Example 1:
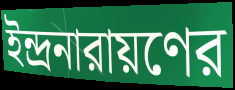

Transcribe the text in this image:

ইন্দ্রনারায়ণের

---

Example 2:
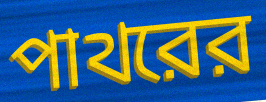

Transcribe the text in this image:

পাথরের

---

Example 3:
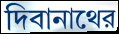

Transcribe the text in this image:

দিবানাথের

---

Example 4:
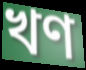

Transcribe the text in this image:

খণ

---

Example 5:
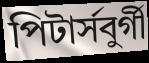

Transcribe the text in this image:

পিটার্সবুর্গী